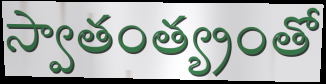
స్వాతంత్య్రంతో